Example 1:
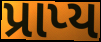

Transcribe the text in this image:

પ્રાપ્ય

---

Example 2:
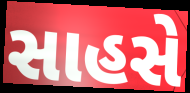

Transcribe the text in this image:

સાહસે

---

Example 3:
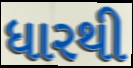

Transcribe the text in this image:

ધારથી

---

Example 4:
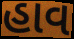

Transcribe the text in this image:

હાવ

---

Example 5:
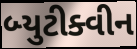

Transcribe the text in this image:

બ્યુટીક્વીન